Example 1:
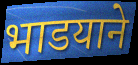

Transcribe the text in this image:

भाडयाने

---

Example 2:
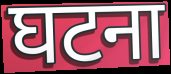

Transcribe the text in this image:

घटना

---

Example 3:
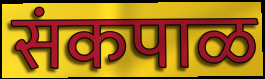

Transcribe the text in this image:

संकपाळ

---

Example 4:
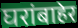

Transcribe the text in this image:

घरांबाहेर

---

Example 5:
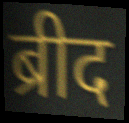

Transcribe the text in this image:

ब्रीद